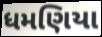
ધમણિયા